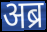
अब्र